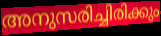
അനുസരിച്ചിരിക്കും